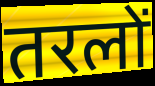
तरलों